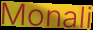
Monali